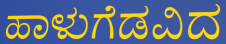
ಹಾಳುಗೆಡವಿದ